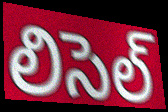
లిసెల్